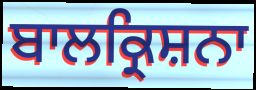
ਬਾਲਕ੍ਰਿਸ਼ਨਾ